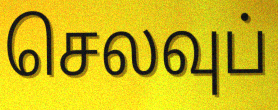
செலவுப்